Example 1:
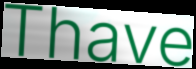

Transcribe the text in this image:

Thave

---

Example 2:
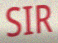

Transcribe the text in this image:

SIR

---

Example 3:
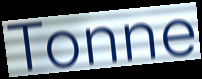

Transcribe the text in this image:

Tonne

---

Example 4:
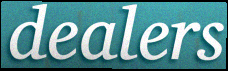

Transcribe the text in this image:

dealers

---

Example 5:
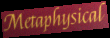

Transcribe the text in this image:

Metaphysical